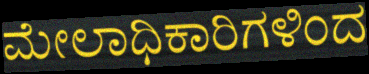
ಮೇಲಾಧಿಕಾರಿಗಳಿಂದ